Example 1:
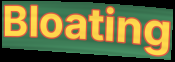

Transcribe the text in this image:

Bloating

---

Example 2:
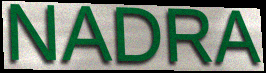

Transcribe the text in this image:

NADRA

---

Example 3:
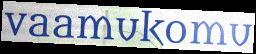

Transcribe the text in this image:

vaamukomu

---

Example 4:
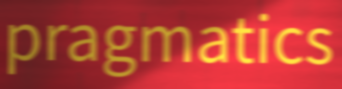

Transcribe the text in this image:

pragmatics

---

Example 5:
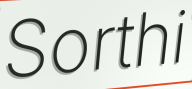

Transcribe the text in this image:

Sorthi